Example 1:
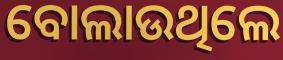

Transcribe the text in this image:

ବୋଲାଉଥିଲେ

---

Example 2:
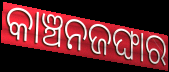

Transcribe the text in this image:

କାଞ୍ଚନଜଙ୍ଘାର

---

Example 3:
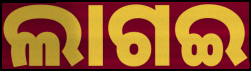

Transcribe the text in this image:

ଲାଗଇ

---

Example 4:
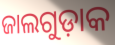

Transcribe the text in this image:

ଜାଲଗୁଡ଼ାକ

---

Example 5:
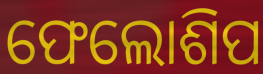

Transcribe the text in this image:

ଫେଲୋଶିପ